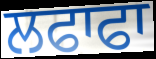
ਲਫਾਫਾ